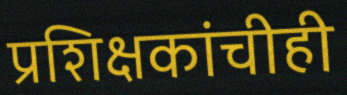
प्रशिक्षकांचीही